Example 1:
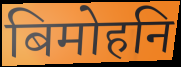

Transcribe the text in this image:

बिमोहनि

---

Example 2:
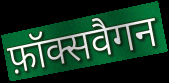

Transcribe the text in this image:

फ़ॉक्सवैगन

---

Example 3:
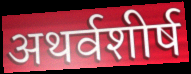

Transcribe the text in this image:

अथर्वशीर्ष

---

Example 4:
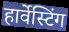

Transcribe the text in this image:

हार्वेस्टिंग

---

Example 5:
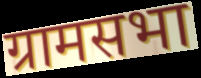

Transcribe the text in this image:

ग्रामसभा